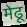
मेढू